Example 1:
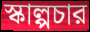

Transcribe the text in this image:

স্কাল্পচার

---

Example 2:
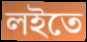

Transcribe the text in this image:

লইতে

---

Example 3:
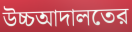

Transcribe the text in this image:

উচ্চআদালতের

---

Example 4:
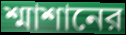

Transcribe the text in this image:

শ্মাশানের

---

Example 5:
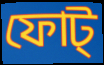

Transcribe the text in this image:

ফোট্